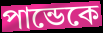
পান্ডেকে